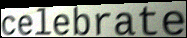
celebrate